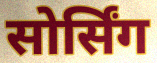
सोर्सिंग